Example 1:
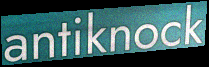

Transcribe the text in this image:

antiknock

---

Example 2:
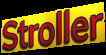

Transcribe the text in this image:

Stroller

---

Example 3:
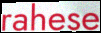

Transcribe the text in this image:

rahese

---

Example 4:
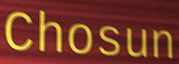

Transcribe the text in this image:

Chosun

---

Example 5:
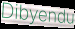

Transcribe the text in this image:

Dibyendu